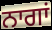
ਨਾਗਾਂ